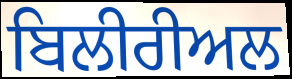
ਬਿਲੀਰੀਅਲ